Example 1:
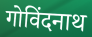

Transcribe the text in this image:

गोविंदनाथ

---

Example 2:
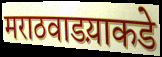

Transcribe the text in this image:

मराठवाडय़ाकडे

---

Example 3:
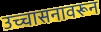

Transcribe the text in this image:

उच्चासनावरून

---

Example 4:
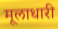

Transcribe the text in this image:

मूलाधारी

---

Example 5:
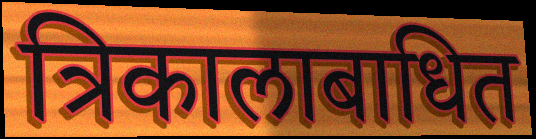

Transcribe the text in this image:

त्रिकालाबाधित